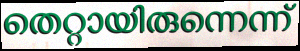
തെറ്റായിരുന്നെന്ന്